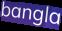
bangla